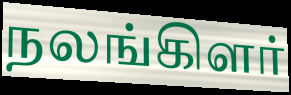
நலங்கிளர்